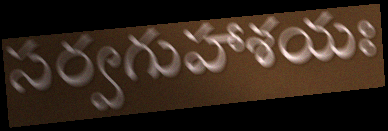
సర్వగుహాశయః